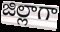
జిల్లాగా